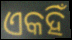
ଏକହିଁ